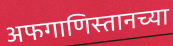
अफगाणिस्तानच्या